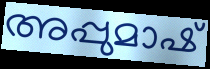
അപ്പുമാഷ്